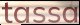
tassa